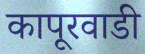
कापूरवाडी